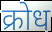
क्रोध